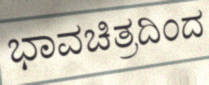
ಭಾವಚಿತ್ರದಿಂದ